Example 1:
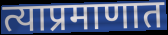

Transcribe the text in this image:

त्याप्रमाणात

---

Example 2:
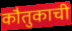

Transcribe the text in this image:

कौतुकाची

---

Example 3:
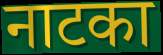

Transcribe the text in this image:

नाटका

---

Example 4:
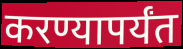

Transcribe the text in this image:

करण्यापर्यंत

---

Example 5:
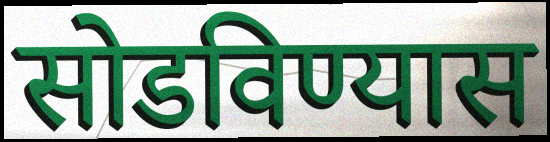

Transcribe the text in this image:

सोडविण्यास